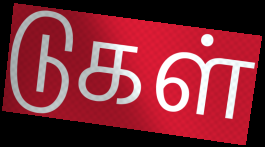
டுகள்